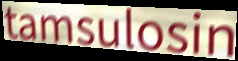
tamsulosin